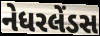
નેધરલેંડસ